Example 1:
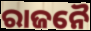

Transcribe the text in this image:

ରାଜନୈ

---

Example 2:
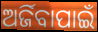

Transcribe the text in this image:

ଅର୍ଜିବାପାଇଁ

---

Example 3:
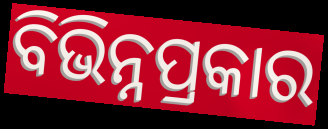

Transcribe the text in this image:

ବିଭିନ୍ନପ୍ରକାର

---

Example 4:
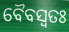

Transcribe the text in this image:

ବୈବସ୍ଵତଃ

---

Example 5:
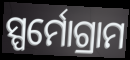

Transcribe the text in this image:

ସ୍ପର୍ମୋଗ୍ରାମ